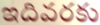
ఇదివరకు